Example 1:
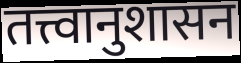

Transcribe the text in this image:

तत्त्वानुशासन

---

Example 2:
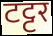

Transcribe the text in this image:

टट्टर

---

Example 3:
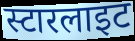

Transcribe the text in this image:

स्टारलाइट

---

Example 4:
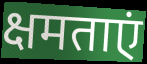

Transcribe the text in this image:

क्षमताएं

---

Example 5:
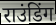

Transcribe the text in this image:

राउंडिंग